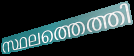
സ്ഥലത്തെത്തി